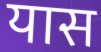
यास